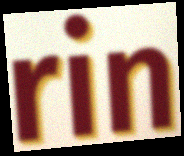
rin